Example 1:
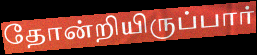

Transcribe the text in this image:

தோன்றியிருப்பார்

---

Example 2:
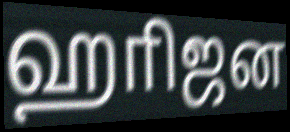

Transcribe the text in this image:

ஹரிஜன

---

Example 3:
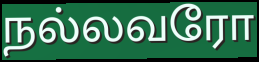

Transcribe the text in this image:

நல்லவரோ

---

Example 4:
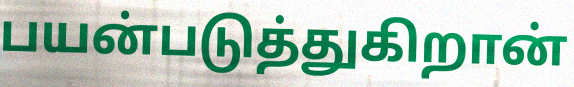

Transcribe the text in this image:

பயன்படுத்துகிறான்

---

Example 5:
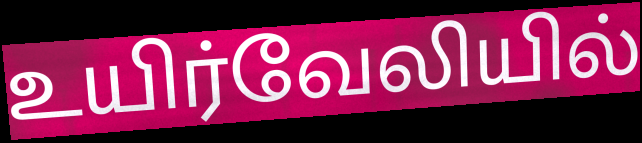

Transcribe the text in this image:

உயிர்வேலியில்